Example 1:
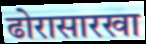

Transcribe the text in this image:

ढोरासारखा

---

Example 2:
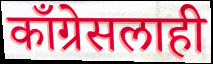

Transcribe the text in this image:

काँग्रेसलाही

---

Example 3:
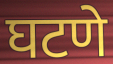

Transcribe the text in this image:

घटणे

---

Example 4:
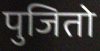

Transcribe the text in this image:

पुजितो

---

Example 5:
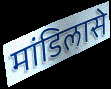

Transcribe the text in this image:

मांडिलासे